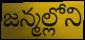
జన్మల్లోని